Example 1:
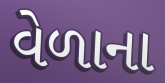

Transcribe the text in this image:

વેળાના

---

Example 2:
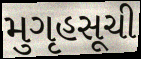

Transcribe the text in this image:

મુગૃહસૂચી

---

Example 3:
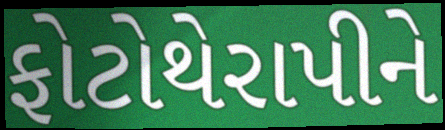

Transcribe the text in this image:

ફોટોથેરાપીને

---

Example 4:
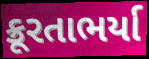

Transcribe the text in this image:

ક્રૂરતાભર્યા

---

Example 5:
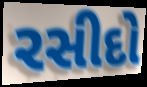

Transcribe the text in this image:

રસીદો